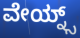
ವೇಯ್ನ್ಸ್